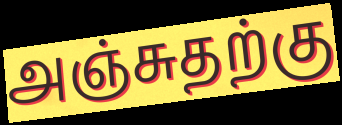
அஞ்சுதற்கு